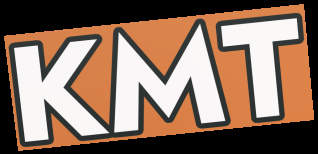
KMT